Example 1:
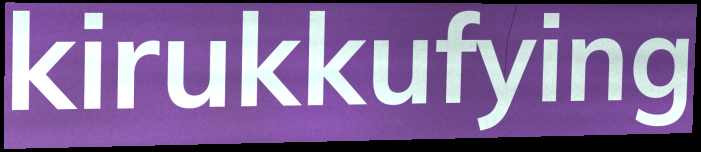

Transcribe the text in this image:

kirukkufying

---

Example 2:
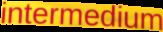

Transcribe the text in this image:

intermedium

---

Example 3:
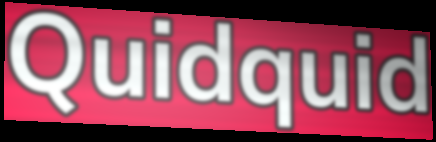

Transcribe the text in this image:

Quidquid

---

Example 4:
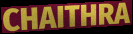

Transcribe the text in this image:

CHAITHRA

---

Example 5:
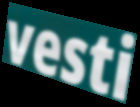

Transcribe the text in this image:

vesti